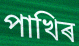
পাখিৰ